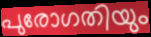
പുരോഗതിയും